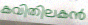
കവിതിലകൻ